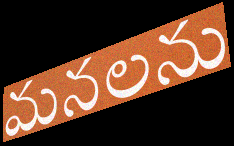
మనలను